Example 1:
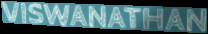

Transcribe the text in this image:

VISWANATHAN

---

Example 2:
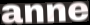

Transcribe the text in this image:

anne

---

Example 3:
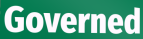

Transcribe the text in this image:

Governed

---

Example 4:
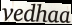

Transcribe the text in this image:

vedhaa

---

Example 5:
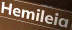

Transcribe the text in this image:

Hemileia